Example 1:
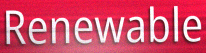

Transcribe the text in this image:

Renewable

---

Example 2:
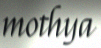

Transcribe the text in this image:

mothya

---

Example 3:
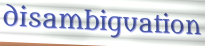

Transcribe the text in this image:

disambiguation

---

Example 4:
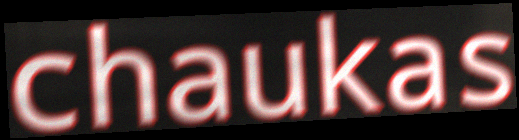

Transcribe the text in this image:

chaukas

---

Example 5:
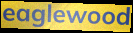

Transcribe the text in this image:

eaglewood